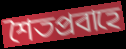
শৈতপ্রবাহে